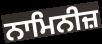
ਨਾਮਿਨੀਜ਼